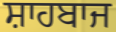
ਸ਼ਾਹਬਾਜ